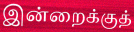
இன்றைக்குத்